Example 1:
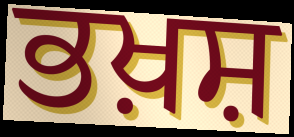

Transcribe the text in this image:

ਭਖ਼ਸ਼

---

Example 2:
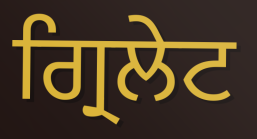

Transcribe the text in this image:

ਗ੍ਰਿਲੇਟ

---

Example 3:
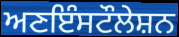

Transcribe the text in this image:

ਅਣਇੰਸਟੌਲੇਸ਼ਨ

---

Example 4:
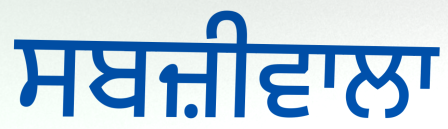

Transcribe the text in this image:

ਸਬਜ਼ੀਵਾਲਾ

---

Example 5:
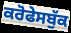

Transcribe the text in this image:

ਕਰੋਫੇਸਬੁੱਕ